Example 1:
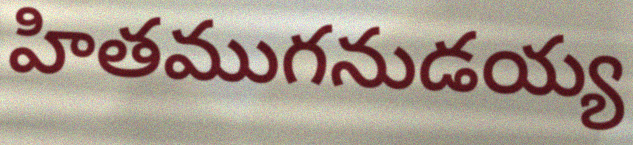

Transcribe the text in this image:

హితముగనుడయ్య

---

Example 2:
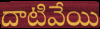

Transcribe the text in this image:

దాటివేయి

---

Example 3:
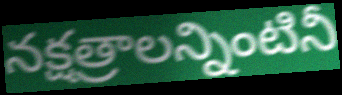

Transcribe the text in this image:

నక్షత్రాలన్నింటినీ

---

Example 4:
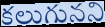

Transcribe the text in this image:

కలుగునని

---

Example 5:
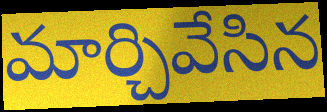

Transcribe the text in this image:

మార్చివేసిన